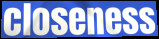
closeness